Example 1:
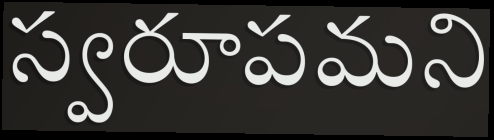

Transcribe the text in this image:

స్వరూపమని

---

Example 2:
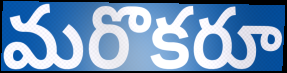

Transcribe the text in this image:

మరొకరూ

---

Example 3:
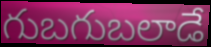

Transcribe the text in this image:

గుబగుబలాడే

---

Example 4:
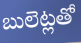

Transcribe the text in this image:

బులెట్లతో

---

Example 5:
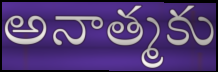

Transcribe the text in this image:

అనాత్మకు